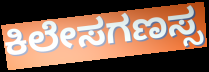
ಕಿಲೇಸಗಣಸ್ಸ